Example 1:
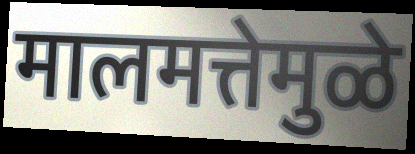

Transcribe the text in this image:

मालमत्तेमुळे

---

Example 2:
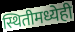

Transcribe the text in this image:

स्थितीमध्येही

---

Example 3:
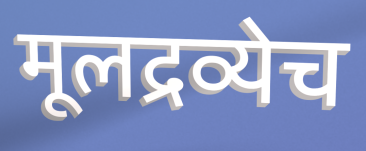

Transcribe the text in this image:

मूलद्रव्येच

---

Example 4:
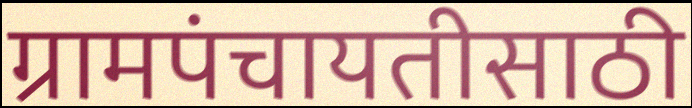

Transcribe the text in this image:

ग्रामपंचायतीसाठी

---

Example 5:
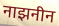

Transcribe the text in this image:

नाझनीन